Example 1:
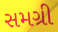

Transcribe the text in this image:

સમગ્રી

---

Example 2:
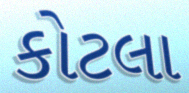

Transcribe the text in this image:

કોટલા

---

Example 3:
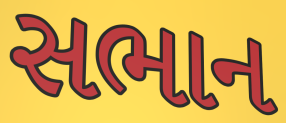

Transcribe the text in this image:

સભાન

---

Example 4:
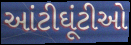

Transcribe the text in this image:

આંટીઘૂંટીઓ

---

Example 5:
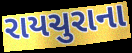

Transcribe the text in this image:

રાયચુરાના